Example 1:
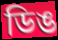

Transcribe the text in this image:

ডিঙ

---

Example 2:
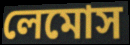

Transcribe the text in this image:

লেমোস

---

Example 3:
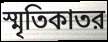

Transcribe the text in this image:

স্মৃতিকাতর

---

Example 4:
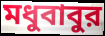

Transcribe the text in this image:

মধুবাবুর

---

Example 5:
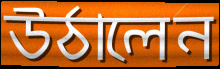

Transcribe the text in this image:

উঠালেন